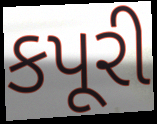
કપૂરી